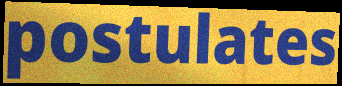
postulates